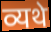
व्यथे